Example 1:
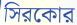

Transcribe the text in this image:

সিরকোর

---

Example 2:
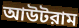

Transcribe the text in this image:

আউটরাম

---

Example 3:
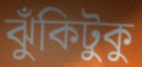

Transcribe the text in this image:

ঝুঁকিটুকু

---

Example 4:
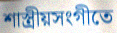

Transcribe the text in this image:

শাস্ত্রীয়সংগীতে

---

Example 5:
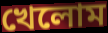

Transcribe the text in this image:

খেলোম